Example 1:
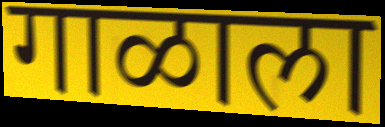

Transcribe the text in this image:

गाळाला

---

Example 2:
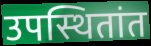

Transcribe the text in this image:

उपस्थितांत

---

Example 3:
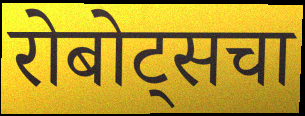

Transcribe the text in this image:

रोबोट्सचा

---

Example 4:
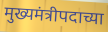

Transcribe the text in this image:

मुख्यमंत्रीपदाच्या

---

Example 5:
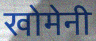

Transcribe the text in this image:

खोमेनी